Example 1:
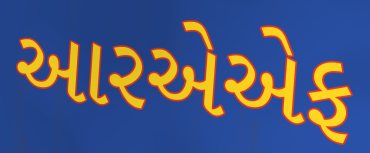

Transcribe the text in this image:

આરએએફ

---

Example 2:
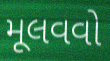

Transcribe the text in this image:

મૂલવવો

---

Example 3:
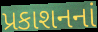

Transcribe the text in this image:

પ્રકાશનનાં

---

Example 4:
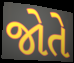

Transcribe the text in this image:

જોતે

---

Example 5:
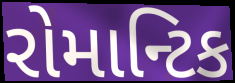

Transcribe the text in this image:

રોમાન્ટિક